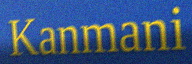
Kanmani